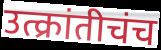
उत्क्रांतीचंच